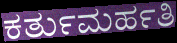
ಕರ್ತುಮರ್ಹತಿ